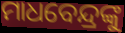
ମାଧବେନ୍ଦ୍ରଙ୍କୁ